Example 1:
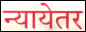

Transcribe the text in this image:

न्यायेतर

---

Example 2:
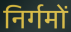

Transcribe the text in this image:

निर्गमों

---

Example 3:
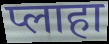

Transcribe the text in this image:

प्लाहा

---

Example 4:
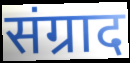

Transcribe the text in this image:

संग्राद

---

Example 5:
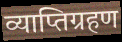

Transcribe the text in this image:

व्याप्तिग्रहण